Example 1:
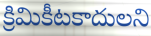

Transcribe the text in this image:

క్రిమికీటకాదులని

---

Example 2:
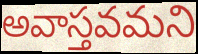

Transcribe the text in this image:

అవాస్తవమని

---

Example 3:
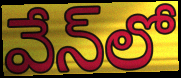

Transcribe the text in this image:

వేన్‌లో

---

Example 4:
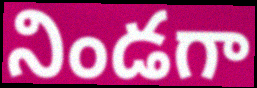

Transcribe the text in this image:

నిండగా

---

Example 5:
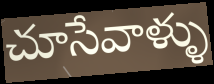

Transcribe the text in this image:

చూసేవాళ్ళు